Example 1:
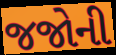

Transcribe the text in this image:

જજોની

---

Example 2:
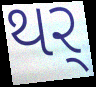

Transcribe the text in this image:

થર્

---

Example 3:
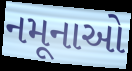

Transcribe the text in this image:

નમૂનાઓ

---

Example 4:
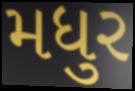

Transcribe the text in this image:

મધુર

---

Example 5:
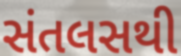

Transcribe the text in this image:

સંતલસથી